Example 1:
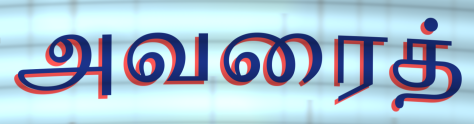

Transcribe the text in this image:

அவரைத்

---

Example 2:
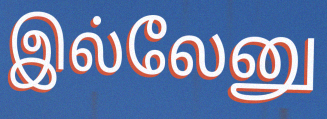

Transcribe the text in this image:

இல்லேனு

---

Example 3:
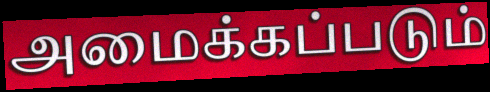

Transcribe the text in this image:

அமைக்கப்படும்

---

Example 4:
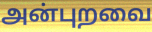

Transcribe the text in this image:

அன்புறவை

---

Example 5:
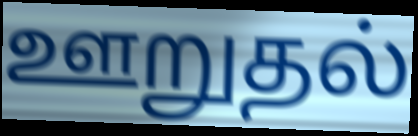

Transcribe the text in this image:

ஊறுதல்